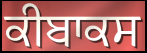
ਕੀਬਾਕਸ